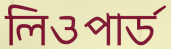
লিওপার্ড